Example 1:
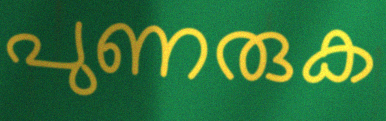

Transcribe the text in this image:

പുണരുക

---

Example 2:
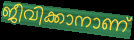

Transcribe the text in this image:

ജീവിക്കാനാണ്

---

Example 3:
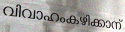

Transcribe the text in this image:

വിവാഹംകഴിക്കാന്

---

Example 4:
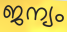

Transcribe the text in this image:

ജന്യം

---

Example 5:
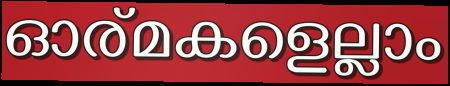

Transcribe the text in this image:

ഓര്മകളെല്ലാം